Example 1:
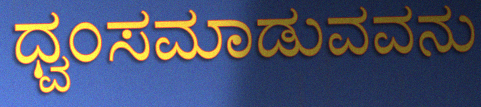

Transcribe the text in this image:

ಧ್ವಂಸಮಾಡುವವನು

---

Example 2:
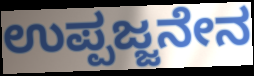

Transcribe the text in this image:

ಉಪ್ಪಜ್ಜನೇನ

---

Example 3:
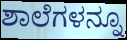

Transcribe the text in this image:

ಶಾಲೆಗಳನ್ನೂ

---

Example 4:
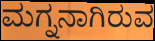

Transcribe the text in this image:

ಮಗ್ನನಾಗಿರುವ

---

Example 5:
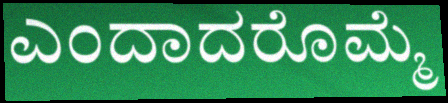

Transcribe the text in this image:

ಎಂದಾದರೊಮ್ಮೆ